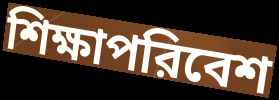
শিক্ষাপরিবেশ